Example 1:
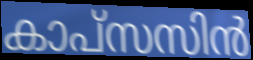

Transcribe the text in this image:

കാപ്സസിൻ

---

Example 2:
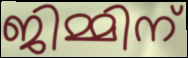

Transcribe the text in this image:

ജിമ്മിന്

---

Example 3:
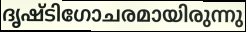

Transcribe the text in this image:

ദൃഷ്ടിഗോചരമായിരുന്നു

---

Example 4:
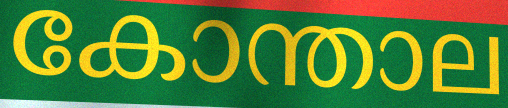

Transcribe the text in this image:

കോന്താല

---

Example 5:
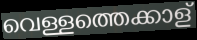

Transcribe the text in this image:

വെള്ളത്തെക്കാള്